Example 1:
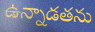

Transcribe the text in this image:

ఉన్నాడతను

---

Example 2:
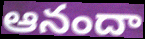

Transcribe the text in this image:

ఆనందా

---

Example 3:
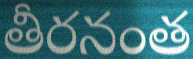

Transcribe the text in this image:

తీరనంత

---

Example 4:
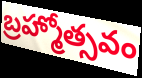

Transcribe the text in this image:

బ్రహ్మోత్సవం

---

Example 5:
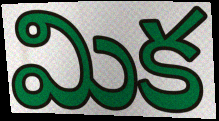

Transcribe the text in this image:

మిక